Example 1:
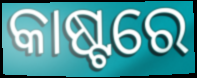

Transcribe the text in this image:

କାଷ୍ଟରେ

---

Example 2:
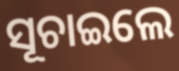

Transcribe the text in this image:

ସୂଚାଇଲେ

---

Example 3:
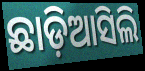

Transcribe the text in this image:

ଛାଡ଼ିଆସିଲି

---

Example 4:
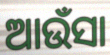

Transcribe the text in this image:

ଆଉଁସା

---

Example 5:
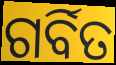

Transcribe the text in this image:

ଗର୍ବିତ